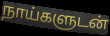
நாய்களுடன்